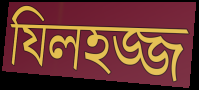
যিলহজ্জ